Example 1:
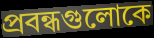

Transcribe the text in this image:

প্রবন্ধগুলোকে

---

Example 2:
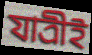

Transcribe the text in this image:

যাত্রীই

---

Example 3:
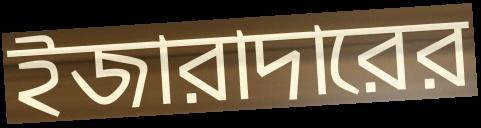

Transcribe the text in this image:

ইজারাদারের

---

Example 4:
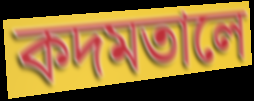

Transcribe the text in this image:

কদমতালে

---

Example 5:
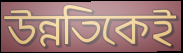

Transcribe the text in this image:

উন্নতিকেই